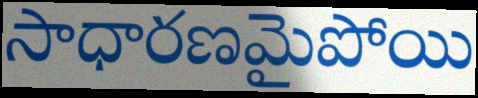
సాధారణమైపోయి